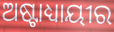
ଅଷ୍ଟାଧ୍ଯାୟୀର